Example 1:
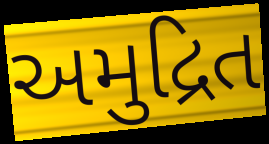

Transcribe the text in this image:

અમુદ્રિત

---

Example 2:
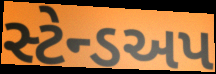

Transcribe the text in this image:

સ્ટેન્ડઅપ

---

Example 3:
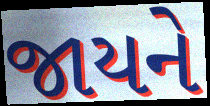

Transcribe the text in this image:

જાયને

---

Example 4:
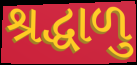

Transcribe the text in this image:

શ્રદ્ધાળુ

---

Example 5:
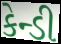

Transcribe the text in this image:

કેન્ડી